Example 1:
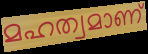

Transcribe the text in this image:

മഹത്വമാണ്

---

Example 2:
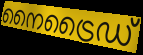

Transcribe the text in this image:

നൈട്രൈഡ്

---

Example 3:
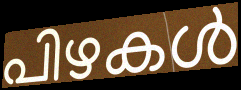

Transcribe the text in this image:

പിഴകൾ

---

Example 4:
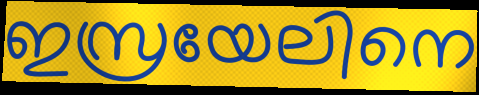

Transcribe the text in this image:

ഇസ്രയേലിനെ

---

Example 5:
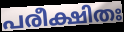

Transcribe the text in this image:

പരീക്ഷിതഃ